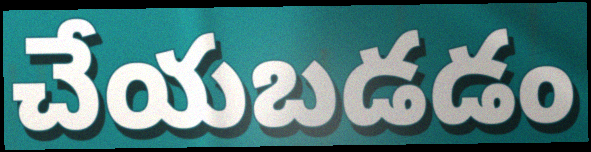
చేయబడడం